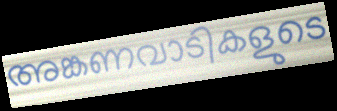
അങ്കണവാടികളുടെ